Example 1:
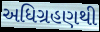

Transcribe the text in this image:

અધિગ્રહણથી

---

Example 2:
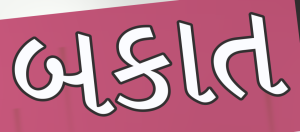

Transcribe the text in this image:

બકાત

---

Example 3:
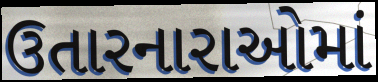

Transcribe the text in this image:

ઉતારનારાઓમાં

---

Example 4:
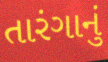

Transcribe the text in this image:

તારંગાનું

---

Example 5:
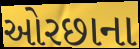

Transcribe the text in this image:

ઓરછાના